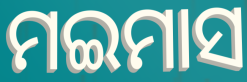
ମଇମାସ